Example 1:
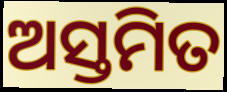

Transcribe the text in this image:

ଅସ୍ତମିତ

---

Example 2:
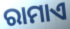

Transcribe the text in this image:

ରାମାଏ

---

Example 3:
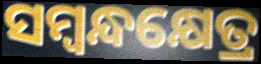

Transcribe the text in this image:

ସମ୍ବନ୍ଧକ୍ଷେତ୍ର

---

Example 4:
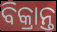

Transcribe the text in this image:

ବିକ୍ରାନ୍ତ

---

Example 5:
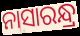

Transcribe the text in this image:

ନାସାରନ୍ଧ୍ର